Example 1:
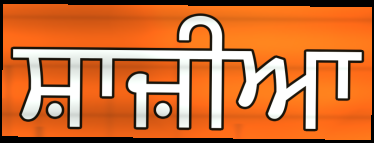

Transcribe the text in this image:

ਸ਼ਾਜ਼ੀਆ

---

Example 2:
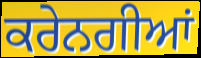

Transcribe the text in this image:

ਕਰੇਨਗੀਆਂ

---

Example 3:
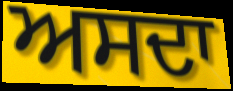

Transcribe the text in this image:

ਅਸਦਾ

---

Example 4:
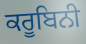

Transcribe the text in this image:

ਕਰੂਬਿਨੀ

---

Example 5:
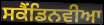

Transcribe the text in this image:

ਸਕੈਂਡਿਨਵੀਆ